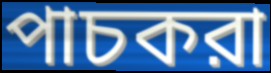
পাচকরা